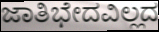
ಜಾತಿಭೇದವಿಲ್ಲದ